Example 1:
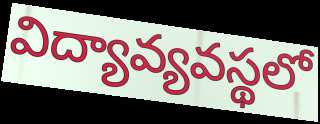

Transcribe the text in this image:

విద్యావ్యవస్థలో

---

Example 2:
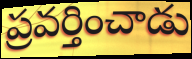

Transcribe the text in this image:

ప్రవర్తించాడు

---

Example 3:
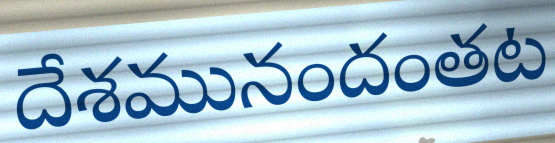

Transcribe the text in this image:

దేశమునందంతట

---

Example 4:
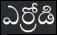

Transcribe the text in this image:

ఎర్రోడి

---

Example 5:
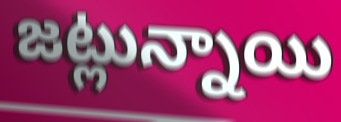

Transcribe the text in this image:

జట్లున్నాయి